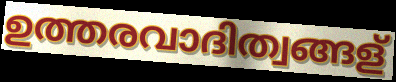
ഉത്തരവാദിത്വങ്ങള്